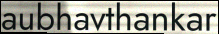
aubhavthankar